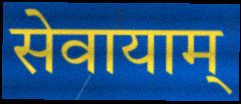
सेवायाम्